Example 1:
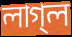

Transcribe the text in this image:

লাগ্‌ল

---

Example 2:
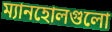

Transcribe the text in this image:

ম্যানহোলগুলো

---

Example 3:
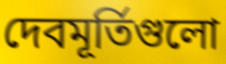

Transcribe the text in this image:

দেবমূর্তিগুলো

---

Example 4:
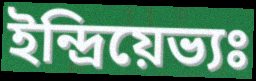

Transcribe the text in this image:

ইন্দ্রিয়েভ্যঃ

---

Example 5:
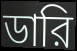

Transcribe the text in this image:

ডারি